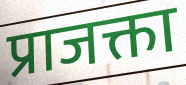
प्राजक्ता